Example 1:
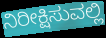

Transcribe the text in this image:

ನಿರೀಕ್ಷಿಸುವಲ್ಲಿ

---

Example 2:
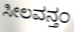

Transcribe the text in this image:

ಸೀಲವನ್ತಂ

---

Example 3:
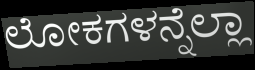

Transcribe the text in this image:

ಲೋಕಗಳನ್ನೆಲ್ಲಾ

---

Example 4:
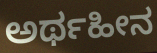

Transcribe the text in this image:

ಅರ್ಥಹೀನ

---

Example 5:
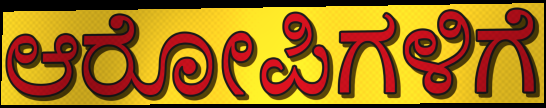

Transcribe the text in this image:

ಆರೋಪಿಗಳಿಗೆ